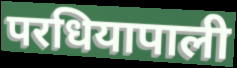
परधियापाली